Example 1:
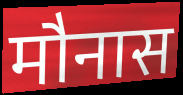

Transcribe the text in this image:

मौनास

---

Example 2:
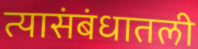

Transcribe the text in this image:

त्यासंबंधातली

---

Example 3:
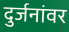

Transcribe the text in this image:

दुर्जनांवर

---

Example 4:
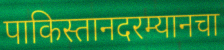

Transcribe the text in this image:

पाकिस्तानदरम्यानचा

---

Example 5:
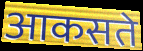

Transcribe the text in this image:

आकसते